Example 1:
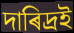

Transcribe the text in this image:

দাৰিদ্ৰই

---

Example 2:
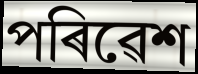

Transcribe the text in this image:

পৰিৱেশ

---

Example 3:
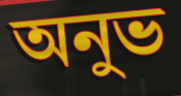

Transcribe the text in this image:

অনুভ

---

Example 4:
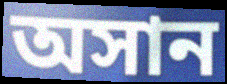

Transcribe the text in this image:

অসান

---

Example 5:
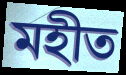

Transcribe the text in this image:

মহীত